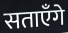
सताएँगे